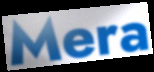
Mera